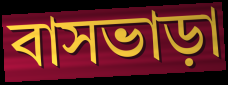
বাসভাড়া